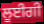
ਲੂਈਗੀ